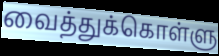
வைத்துக்கொள்ளு